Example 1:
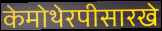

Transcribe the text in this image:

केमोथेरपीसारखे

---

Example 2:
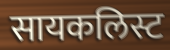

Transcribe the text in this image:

सायकलिस्ट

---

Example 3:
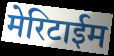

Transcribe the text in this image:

मेरिटाईम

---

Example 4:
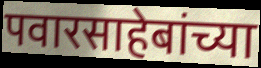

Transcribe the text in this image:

पवारसाहेबांच्या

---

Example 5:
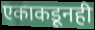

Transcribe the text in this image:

एकाकडूनही